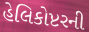
હેલિકોપ્ટરની